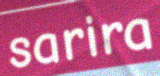
sarira